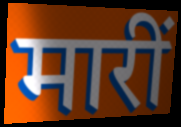
मारीं